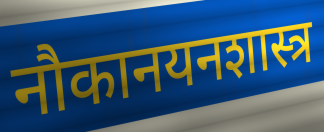
नौकानयनशास्त्र